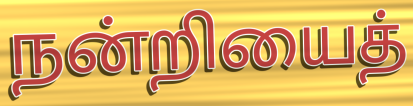
நன்றியைத்